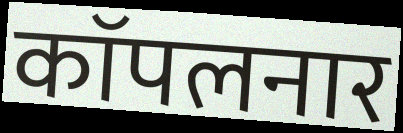
कॉपलनार